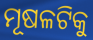
ମୂଷଳଟିକୁ